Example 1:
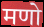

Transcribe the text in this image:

मणो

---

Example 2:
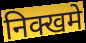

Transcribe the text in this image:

निक्खमे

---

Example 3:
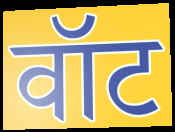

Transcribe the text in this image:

वॉट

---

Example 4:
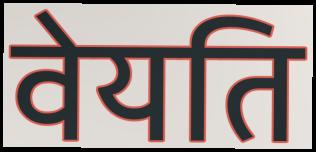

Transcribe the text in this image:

वेयति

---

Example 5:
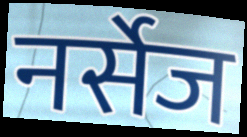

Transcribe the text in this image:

नर्सेज